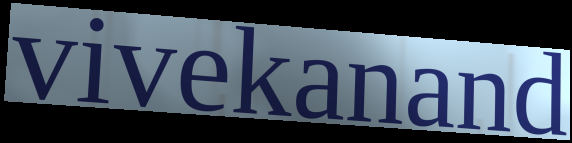
vivekanand